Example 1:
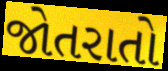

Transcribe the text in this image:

જોતરાતો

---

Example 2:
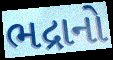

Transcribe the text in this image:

ભદ્રાનો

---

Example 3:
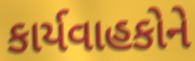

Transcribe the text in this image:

કાર્યવાહકોને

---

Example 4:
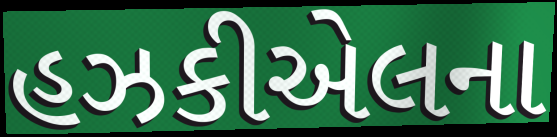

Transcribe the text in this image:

હઝકીએલના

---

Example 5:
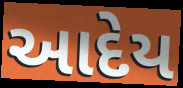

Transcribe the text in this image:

આદેય